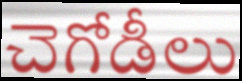
చెగోడీలు